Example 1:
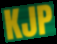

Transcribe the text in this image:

KJP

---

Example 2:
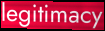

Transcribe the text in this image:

legitimacy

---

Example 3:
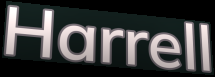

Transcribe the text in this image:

Harrell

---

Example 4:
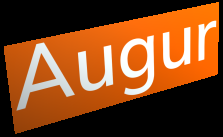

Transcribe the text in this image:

Augur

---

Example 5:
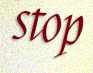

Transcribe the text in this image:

stop